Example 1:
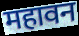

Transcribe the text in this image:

महावन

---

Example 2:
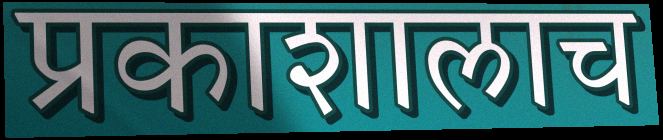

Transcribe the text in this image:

प्रकाशालाच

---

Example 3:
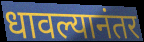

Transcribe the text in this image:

धावल्यानंतर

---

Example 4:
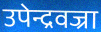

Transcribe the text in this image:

उपेन्द्रवज्रा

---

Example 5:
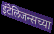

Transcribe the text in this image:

इंटेलिजन्सच्या